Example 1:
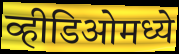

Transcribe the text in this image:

व्हीडिओमध्ये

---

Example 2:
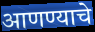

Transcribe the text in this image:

आणण्याचे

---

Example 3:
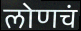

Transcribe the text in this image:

लोणचं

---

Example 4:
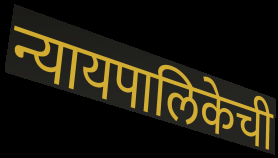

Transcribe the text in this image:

न्यायपालिकेची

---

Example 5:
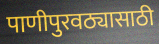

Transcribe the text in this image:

पाणीपुरवठ्यासाठी